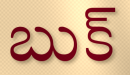
బుక్